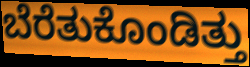
ಬೆರೆತುಕೊಂಡಿತ್ತು